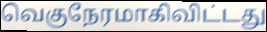
வெகுநேரமாகிவிட்டது